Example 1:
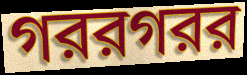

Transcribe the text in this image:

গররগরর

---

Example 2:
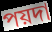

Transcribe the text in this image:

পয়দা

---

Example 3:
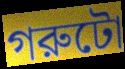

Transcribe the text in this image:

গরুটো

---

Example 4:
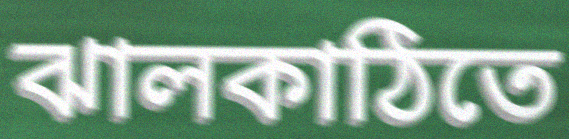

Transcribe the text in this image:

ঝালকাঠিতে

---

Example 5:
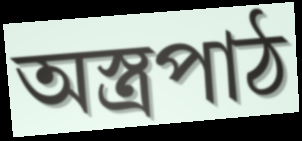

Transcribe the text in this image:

অস্ত্রপাঠ